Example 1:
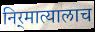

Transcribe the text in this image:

निर्मात्यालाच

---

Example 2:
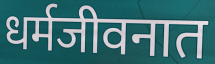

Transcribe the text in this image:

धर्मजीवनात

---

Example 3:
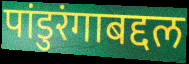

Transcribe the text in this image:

पांडुरंगाबद्दल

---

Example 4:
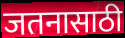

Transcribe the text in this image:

जतनासाठी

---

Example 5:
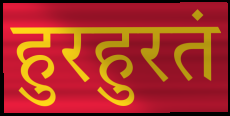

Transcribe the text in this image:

हुरहुरतं